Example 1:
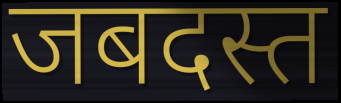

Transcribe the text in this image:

जबदस्त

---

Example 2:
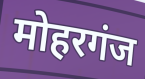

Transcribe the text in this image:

मोहरगंज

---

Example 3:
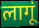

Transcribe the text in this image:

लागूं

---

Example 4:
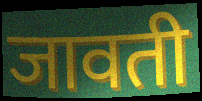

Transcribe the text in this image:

जावती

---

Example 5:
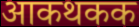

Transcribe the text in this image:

आकथकक